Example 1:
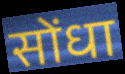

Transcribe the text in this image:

सोंधा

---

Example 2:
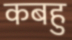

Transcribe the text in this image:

कबहु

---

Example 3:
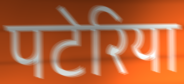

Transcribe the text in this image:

पटेरिया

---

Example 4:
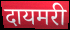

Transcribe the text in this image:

दायमरी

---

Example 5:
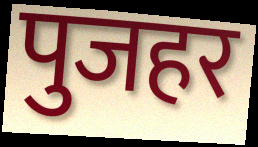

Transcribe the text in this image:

पुजहर